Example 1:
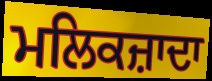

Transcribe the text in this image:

ਮਲਿਕਜ਼ਾਦਾ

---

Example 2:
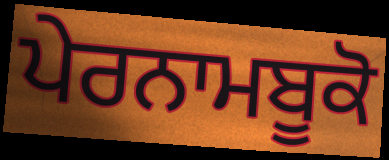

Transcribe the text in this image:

ਪੇਰਨਾਮਬੂਕੋ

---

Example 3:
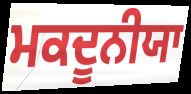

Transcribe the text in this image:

ਮਕਦੂਨੀਯਾ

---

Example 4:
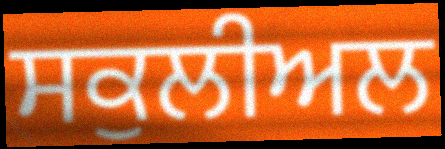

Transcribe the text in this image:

ਸਕੁਲੀਅਲ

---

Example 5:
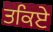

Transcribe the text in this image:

ਤਕਿਏ